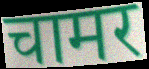
चामर